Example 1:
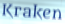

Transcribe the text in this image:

Kraken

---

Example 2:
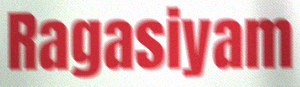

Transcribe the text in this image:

Ragasiyam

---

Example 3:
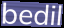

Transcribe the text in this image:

bedil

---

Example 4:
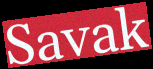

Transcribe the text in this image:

Savak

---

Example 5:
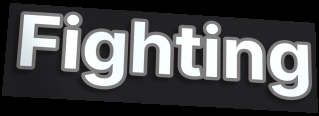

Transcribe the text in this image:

Fighting